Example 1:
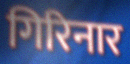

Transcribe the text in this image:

गिरिनार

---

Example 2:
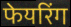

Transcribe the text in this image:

फेयरिंग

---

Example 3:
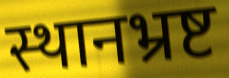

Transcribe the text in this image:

स्थानभ्रष्ट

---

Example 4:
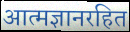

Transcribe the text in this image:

आत्मज्ञानरहित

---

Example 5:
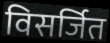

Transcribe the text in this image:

विसर्जित